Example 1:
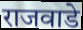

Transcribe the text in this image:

राजवाडे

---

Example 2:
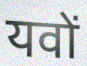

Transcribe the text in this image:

यवों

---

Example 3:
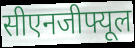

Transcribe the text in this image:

सीएनजीफ्यूल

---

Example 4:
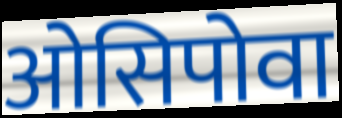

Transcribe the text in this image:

ओसिपोवा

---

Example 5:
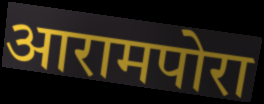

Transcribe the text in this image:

आरामपोरा